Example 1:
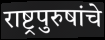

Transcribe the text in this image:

राष्ट्रपुरुषांचे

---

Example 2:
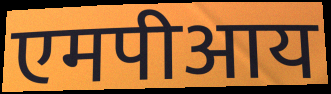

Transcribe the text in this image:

एमपीआय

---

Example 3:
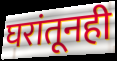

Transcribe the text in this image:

घरांतूनही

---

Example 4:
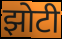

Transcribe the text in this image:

झोटी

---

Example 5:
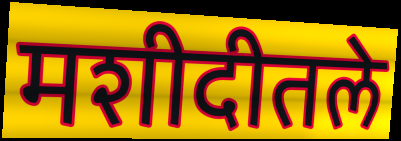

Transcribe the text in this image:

मशीदीतले